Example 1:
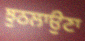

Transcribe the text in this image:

ਝੁਠਲਾਉਣਾ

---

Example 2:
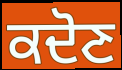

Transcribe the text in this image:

ਕਦੋਣ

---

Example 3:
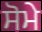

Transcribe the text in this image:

ਸੋਮੇ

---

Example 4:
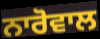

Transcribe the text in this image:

ਨਾਰੋਵਾਲ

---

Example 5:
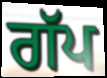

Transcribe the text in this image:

ਗੱਪ